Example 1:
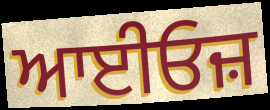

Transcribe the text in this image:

ਆਈਓਜ਼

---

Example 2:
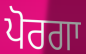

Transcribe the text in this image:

ਪੋਰਗਾ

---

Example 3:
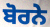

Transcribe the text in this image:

ਬੋਰਨੇ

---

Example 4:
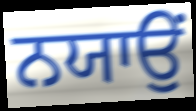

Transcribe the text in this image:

ਨਯਾਉਂ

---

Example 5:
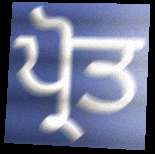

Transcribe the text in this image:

ਪ੍ਰੋਤ